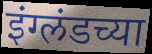
इंग्लंडच्या